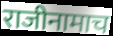
राजीनामाच